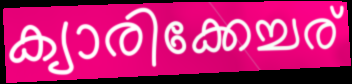
ക്യാരിക്കേച്ചര്